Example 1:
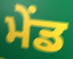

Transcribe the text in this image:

ਮੇਂਡ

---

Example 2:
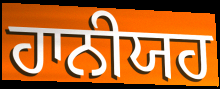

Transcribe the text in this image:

ਹਾਨੀਯਹ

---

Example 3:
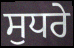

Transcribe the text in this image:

ਸੁਧਰੇ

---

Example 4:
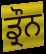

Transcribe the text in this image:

ਡ੍ਰੌਨ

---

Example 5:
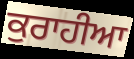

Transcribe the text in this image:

ਕੁਰਾਹੀਆ